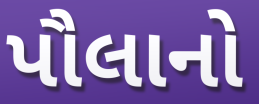
પૌલાનો